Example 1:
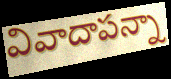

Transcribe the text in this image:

వివాదాపన్నా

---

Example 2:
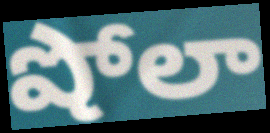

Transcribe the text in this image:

షోలా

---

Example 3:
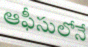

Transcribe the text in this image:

ఆఫీసులోనే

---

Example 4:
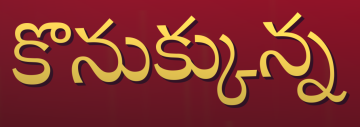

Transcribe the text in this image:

కొనుక్కున్న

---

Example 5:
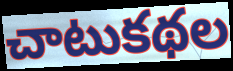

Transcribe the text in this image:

చాటుకథల